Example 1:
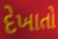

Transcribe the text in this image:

દેખાતો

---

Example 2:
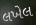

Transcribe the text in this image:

લખેલ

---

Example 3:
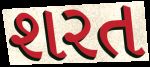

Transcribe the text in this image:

શરત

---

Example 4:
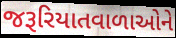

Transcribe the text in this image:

જરૂરિયાતવાળાઓને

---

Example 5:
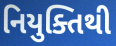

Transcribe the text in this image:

નિયુક્તિથી